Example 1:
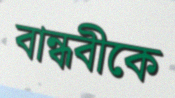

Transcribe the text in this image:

বান্ধবীকে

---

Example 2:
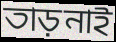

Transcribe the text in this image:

তাড়নাই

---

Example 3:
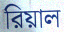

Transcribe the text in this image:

রিয়াল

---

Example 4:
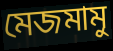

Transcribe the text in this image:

মেজমামু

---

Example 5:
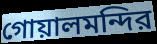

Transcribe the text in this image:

গোয়ালমন্দির